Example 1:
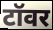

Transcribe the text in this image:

टॉवर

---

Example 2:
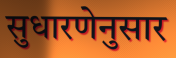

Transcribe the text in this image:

सुधारणेनुसार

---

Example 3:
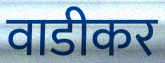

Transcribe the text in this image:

वाडीकर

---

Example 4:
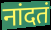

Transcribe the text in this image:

नांदतं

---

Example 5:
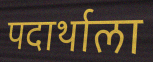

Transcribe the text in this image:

पदार्थाला